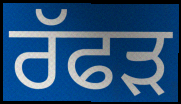
ਰੱਫੜ